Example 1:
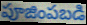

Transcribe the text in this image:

పూజింపబడి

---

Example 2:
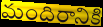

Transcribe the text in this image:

మందిరానికి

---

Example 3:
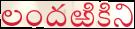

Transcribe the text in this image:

లందఱికిని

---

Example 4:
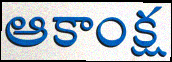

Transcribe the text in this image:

ఆకాంక్ష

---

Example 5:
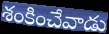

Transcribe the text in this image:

శంకించేవాడు